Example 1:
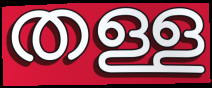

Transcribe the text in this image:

തള്ള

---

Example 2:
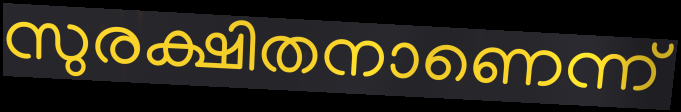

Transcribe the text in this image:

സുരക്ഷിതനാണെന്ന്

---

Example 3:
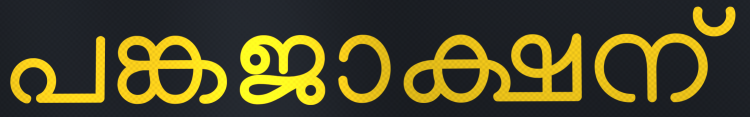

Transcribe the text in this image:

പങ്കജാക്ഷന്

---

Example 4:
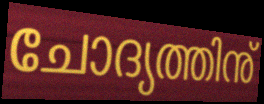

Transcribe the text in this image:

ചോദ്യത്തിനു്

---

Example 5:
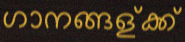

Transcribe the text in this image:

ഗാനങ്ങള്ക്ക്